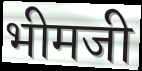
भीमजी